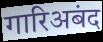
गारिअबंद